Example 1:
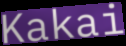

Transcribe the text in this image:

Kakai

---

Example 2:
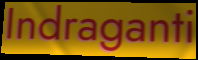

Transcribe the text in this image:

Indraganti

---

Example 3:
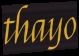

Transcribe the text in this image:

thayo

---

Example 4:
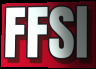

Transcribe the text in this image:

FFSI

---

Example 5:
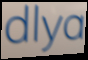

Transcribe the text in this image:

dlya